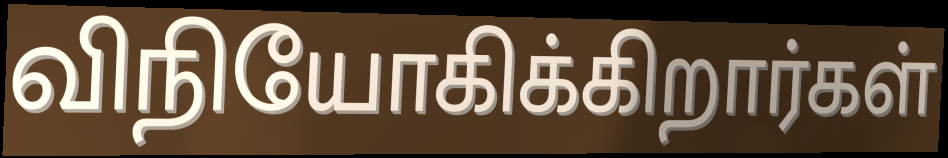
விநியோகிக்கிறார்கள்